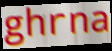
ghrna